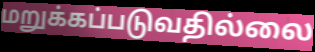
மறுக்கப்படுவதில்லை